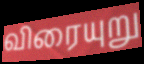
விரையுறு